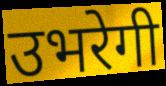
उभरेगी